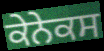
ਕੇਨੇਕਸ